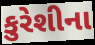
કુરેશીના